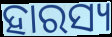
ହାରସ୍ୟ